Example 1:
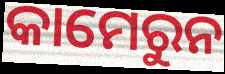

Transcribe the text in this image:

କାମେରୁନ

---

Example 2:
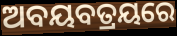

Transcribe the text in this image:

ଅବୟବତ୍ରୟରେ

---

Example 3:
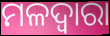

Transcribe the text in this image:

ମଳଦ୍ଵାରା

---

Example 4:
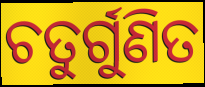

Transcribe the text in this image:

ଚତୁର୍ଗୁଣିତ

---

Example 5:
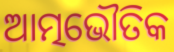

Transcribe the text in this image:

ଆତ୍ମଭୌତିକ